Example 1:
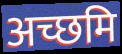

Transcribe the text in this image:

अच्छमि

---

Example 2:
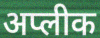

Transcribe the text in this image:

अप्लीक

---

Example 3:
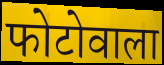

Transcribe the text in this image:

फोटोवाला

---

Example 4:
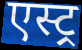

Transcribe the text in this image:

एस्ट्र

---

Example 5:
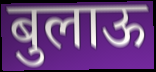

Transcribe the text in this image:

बुलाऊ